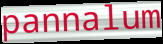
pannalum